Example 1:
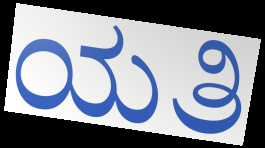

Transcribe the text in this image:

ಯತಿ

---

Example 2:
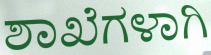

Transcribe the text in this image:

ಶಾಖೆಗಳಾಗಿ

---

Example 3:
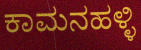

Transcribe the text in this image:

ಕಾಮನಹಳ್ಳಿ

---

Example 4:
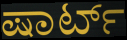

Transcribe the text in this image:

ಷಾರ್ಟ್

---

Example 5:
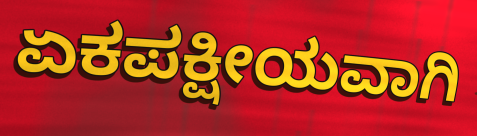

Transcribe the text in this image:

ಏಕಪಕ್ಷೀಯವಾಗಿ